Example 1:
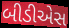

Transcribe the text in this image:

બીડીએસ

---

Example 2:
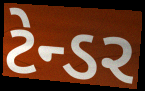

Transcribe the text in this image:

ટેન્ડર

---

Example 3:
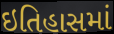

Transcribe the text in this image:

ઇતિહાસમાં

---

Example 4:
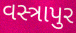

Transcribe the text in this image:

વસ્ત્રાપુર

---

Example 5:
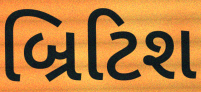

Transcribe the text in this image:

બ્રિટિશ